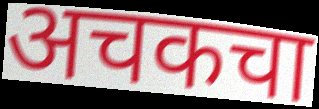
अचकचा